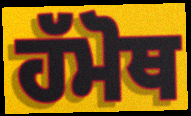
ਹੱਮੋਥ